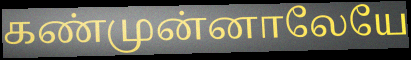
கண்முன்னாலேயே